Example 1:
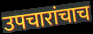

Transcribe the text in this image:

उपचारांचाच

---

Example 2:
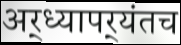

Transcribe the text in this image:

अर्ध्यापर्यंतच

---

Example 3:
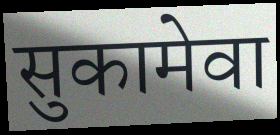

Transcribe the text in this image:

सुकामेवा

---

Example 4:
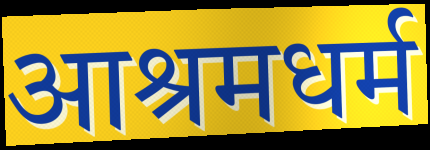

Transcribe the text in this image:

आश्रमधर्म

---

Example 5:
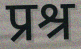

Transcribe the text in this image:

प्रश्र